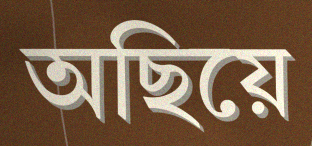
অছিয়ে